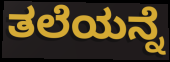
ತಲೆಯನ್ನೆ